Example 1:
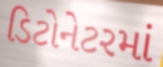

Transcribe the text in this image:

ડિટોનેટરમાં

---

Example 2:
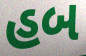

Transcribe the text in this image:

હબ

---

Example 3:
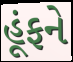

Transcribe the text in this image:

હૂંફને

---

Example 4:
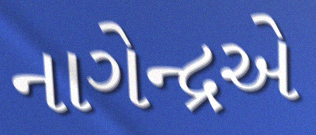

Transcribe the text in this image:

નાગેન્દ્રએ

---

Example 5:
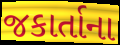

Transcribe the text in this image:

જકાર્તાના